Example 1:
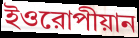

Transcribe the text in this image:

ইওরোপীয়ান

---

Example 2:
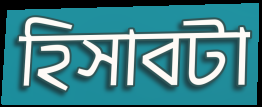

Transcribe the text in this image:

হিসাবটা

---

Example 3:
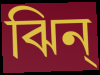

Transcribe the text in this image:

ঝিন্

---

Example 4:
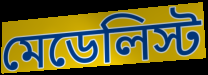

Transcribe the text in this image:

মেডেলিস্ট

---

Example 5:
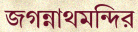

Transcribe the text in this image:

জগন্নাথমন্দির